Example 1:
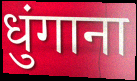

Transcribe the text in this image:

धुंगाना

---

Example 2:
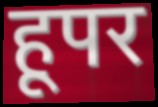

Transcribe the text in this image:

हूपर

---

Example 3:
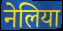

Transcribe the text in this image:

नेलिया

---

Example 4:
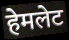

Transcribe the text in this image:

हेमलेट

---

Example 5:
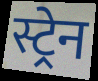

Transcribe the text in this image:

स्ट्रेन